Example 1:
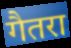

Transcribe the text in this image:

गैतरा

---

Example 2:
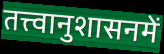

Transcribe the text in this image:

तत्त्वानुशासनमें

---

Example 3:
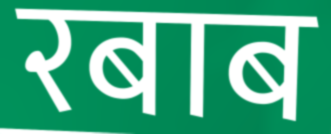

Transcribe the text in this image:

रबाब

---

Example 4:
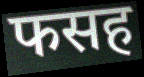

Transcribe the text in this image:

फसह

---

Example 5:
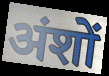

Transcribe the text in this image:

अंशों